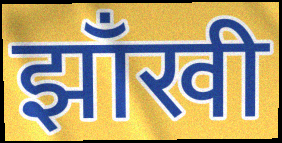
झाँखी